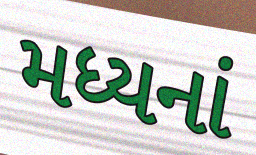
મધ્યનાં